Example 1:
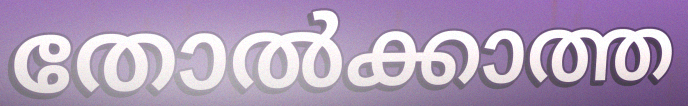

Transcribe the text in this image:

തോൽക്കാത്ത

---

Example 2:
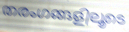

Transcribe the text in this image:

തരംഗങ്ങളിലൂടെ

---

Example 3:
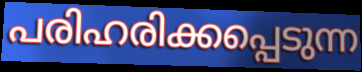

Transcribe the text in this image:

പരിഹരിക്കപ്പെടുന്ന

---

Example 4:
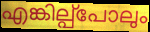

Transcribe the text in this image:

എങ്കില്പ്പോലും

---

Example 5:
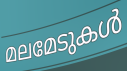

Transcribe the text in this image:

മലമേടുകൾ